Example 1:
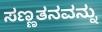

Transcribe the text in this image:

ಸಣ್ಣತನವನ್ನು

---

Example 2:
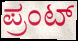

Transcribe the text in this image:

ಪ್ರಂಟ್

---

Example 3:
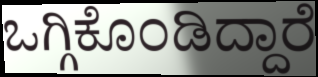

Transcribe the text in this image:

ಒಗ್ಗಿಕೊಂಡಿದ್ದಾರೆ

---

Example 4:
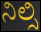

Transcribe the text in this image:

ನಿಲ್ಸಿ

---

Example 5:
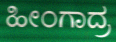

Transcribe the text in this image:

ಹೀಂಗಾದ್ರ